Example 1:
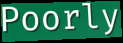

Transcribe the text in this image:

Poorly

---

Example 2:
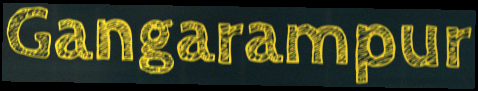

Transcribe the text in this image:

Gangarampur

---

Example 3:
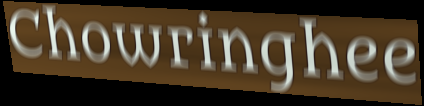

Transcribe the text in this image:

Chowringhee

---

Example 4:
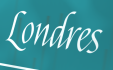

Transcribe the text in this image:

Londres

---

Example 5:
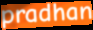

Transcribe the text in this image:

pradhan